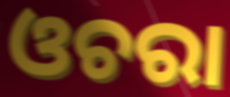
ଓଚରା